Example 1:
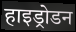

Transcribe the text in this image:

हाइड्रोडन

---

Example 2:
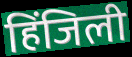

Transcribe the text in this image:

हिंजिली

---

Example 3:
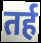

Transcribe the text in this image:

तर्ह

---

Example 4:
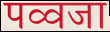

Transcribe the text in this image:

पव्वजा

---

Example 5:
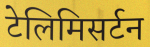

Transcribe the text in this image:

टेलिमिसर्टन